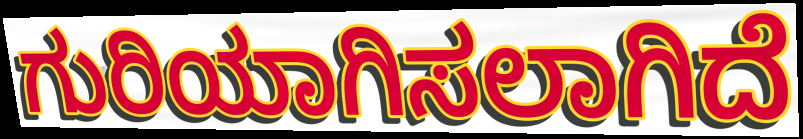
ಗುರಿಯಾಗಿಸಲಾಗಿದೆ